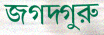
জগদ্গুরু